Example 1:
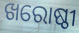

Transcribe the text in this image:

ଖରୋଷ୍ଠୀ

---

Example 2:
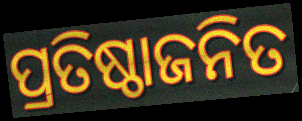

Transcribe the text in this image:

ପ୍ରତିଷ୍ଠାଜନିତ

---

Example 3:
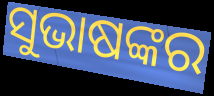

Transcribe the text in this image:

ସୁଭାଷଙ୍କର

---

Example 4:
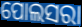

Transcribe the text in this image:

ପୋଲସରା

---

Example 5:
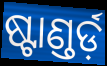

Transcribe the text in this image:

ଷ୍ଟାଣ୍ଡର୍ଡ଼